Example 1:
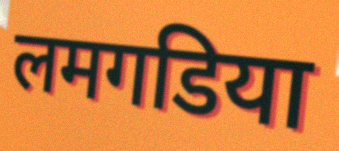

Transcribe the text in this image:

लमगडिया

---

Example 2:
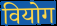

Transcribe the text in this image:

वियोग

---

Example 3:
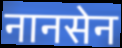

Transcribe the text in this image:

नानसेन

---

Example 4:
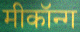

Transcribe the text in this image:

मीकॉन्ग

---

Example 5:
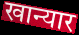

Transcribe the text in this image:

खान्यार